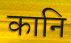
कानि